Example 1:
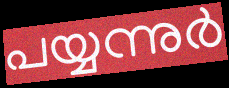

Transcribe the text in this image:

പയ്യന്നുർ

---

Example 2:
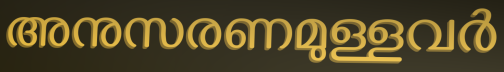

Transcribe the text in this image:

അനുസരണമുള്ളവർ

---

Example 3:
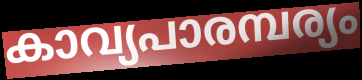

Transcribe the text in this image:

കാവ്യപാരമ്പര്യം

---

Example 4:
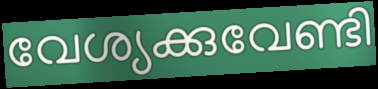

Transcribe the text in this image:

വേശ്യക്കുവേണ്ടി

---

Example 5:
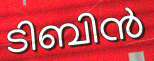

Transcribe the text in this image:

ടിബിൻ